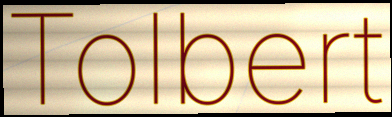
Tolbert